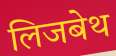
लिजबेथ